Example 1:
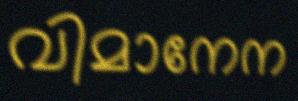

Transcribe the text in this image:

വിമാനേന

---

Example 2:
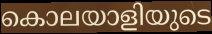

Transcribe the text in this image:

കൊലയാളിയുടെ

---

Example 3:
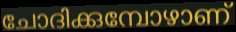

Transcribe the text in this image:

ചോദിക്കുമ്പോഴാണ്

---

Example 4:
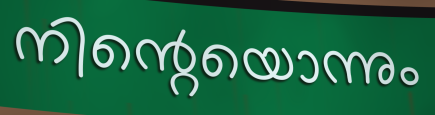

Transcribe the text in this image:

നിന്റെയൊന്നും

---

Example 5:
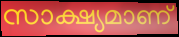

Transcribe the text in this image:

സാക്ഷ്യമാണ്